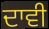
ਦਾਵੀ